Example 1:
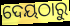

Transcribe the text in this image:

ଦେୟଠାରୁ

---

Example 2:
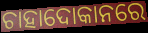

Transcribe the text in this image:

ଚାହାଦୋକାନରେ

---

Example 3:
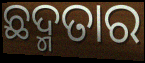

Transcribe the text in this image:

ଛଦ୍ମତାର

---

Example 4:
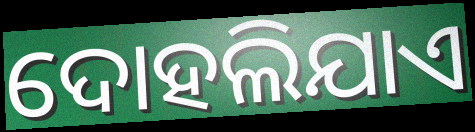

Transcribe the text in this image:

ଦୋହଲିଯାଏ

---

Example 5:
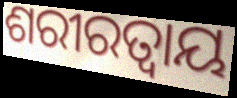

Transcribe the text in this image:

ଶରୀରତ୍ୱାୟ